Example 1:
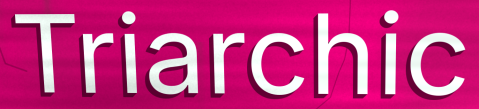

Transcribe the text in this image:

Triarchic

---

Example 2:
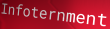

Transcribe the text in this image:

Infoternment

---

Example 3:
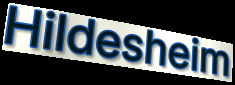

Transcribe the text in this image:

Hildesheim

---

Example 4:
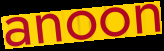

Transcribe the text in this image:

anoon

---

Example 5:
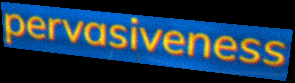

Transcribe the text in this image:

pervasiveness